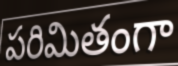
పరిమితంగా